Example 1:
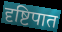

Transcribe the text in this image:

दृष्टिपात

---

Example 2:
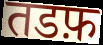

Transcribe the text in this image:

तडफ़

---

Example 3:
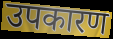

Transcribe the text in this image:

उपकारण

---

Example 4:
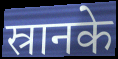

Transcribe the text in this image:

स्रानके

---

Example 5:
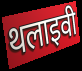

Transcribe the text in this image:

थलाइवी